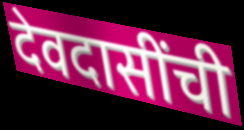
देवदासींची